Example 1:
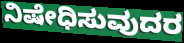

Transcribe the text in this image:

ನಿಷೇಧಿಸುವುದರ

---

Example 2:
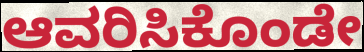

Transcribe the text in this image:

ಆವರಿಸಿಕೊಂಡೇ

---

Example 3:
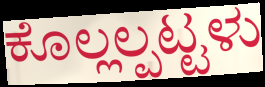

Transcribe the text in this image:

ಕೊಲ್ಲಲ್ಪಟ್ಟಳು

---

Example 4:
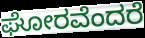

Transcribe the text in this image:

ಘೋರವೆಂದರೆ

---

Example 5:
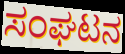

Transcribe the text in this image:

ಸಂಘಟನ